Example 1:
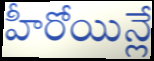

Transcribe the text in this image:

హీరోయిన్లే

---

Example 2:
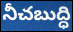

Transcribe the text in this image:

నీచబుద్ధి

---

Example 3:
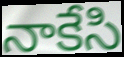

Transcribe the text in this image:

నాకేసి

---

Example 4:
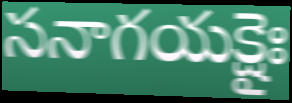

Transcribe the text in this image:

సనాగయక్షైః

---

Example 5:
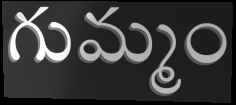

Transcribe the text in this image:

గుమ్మం